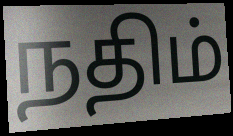
நதிம்